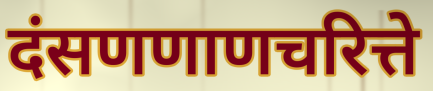
दंसणणाणचरित्ते